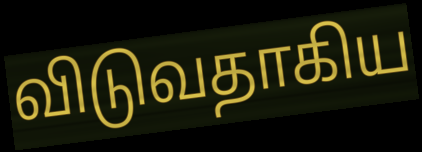
விடுவதாகிய